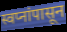
स्वप्नांपासून